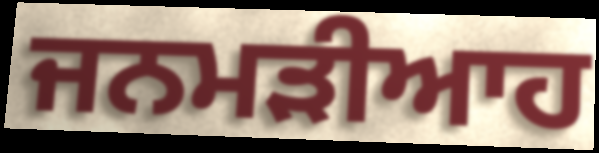
ਜਨਮੜੀਆਹ